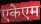
एकेएम